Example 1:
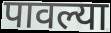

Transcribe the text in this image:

पावल्या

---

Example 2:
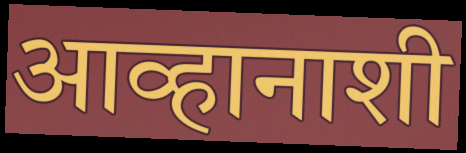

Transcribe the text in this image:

आव्हानाशी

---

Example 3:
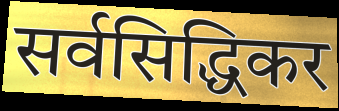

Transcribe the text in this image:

सर्वसिद्धिकर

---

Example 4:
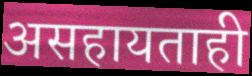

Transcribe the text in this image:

असहायताही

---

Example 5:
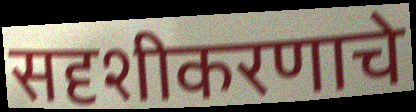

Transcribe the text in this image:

सदृशीकरणाचे